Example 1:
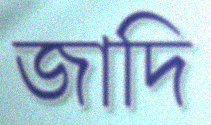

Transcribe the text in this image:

জাদি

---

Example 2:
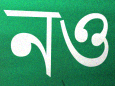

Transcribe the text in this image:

নও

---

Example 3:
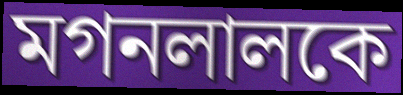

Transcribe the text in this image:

মগনলালকে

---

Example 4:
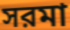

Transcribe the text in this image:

সরমা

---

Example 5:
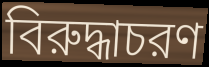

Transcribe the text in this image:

বিরুদ্ধাচরণ